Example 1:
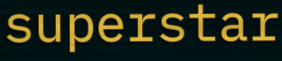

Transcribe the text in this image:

superstar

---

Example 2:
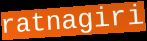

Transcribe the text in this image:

ratnagiri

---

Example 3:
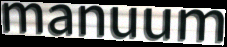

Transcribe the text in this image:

manuum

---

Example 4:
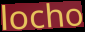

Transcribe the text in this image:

locho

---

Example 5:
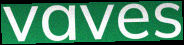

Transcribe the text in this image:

vaves